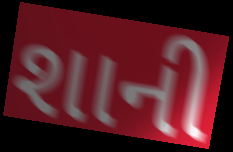
શાની